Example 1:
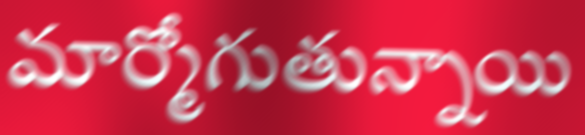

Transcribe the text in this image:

మార్మోగుతున్నాయి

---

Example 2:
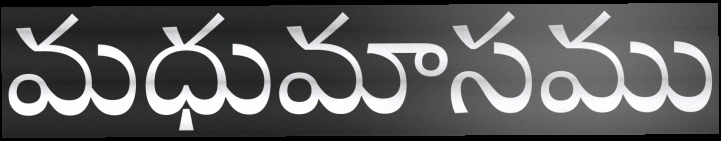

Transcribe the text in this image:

మధుమాసము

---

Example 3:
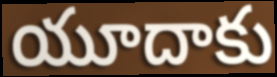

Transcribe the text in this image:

యూదాకు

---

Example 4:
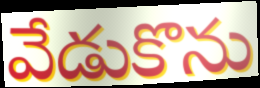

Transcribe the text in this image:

వేడుకొను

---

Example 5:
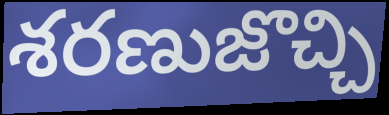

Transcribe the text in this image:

శరణుజొచ్చి